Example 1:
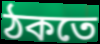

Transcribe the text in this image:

ঠকতে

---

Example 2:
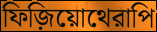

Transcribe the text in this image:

ফিজ়িয়োথেরাপি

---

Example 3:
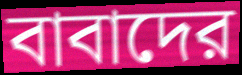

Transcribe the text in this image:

বাবাদের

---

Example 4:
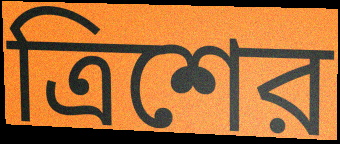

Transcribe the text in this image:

ত্রিশের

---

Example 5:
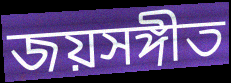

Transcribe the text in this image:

জয়সঙ্গীত